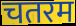
चतरम